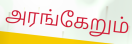
அரங்கேறும்